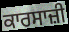
ਕਾਰਸਾਜ਼ੀ